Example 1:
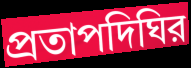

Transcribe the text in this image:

প্রতাপদিঘির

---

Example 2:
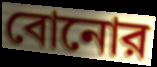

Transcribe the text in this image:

বোনোর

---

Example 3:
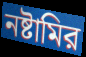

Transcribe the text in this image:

নষ্টামির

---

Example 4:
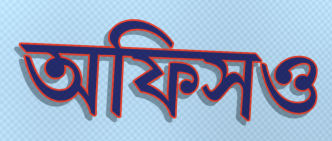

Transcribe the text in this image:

অফিসও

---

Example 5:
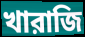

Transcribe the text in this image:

খারাজি